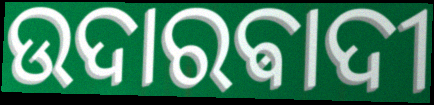
ଉଦାରଵାଦୀ